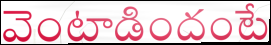
వెంటాడిందంటే